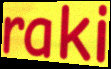
raki